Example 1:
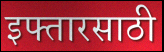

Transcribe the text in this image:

इफ्तारसाठी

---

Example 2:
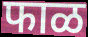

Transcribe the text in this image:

फाळ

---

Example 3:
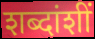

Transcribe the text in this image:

शब्दांशीं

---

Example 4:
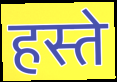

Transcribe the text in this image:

हस्ते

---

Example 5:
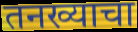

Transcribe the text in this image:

तनख्याचा